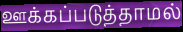
ஊக்கப்படுத்தாமல்